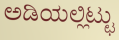
ಅಡಿಯಲ್ಲಿಟ್ಟು